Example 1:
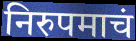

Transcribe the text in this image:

निरुपमाचं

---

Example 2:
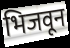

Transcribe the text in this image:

भिजवून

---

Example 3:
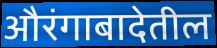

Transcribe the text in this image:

औरंगाबादेतील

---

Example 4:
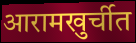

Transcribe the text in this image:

आरामखुर्चीत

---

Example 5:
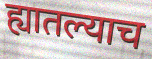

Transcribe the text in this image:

ह्यातल्याच